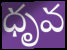
ధృవ